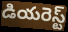
డియరెస్ట్